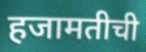
हजामतीची